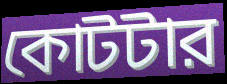
কোটটার